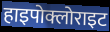
हाइपोक्लोराइट